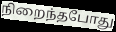
நிறைந்தபோது